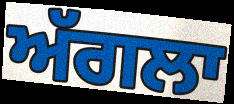
ਅੱਗਲਾ